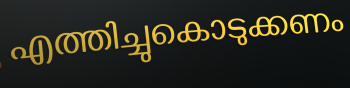
എത്തിച്ചുകൊടുക്കണം